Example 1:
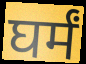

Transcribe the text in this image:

घर्मं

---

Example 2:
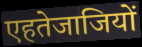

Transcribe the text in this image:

एहतेजाजियों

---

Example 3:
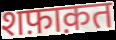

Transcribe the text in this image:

शफ़ाक़त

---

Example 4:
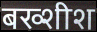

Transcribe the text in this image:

बख्शीश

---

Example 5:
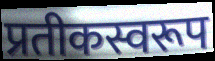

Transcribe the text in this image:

प्रतीकस्वरूप